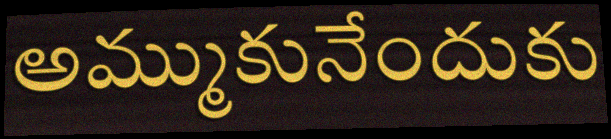
అమ్ముకునేందుకు